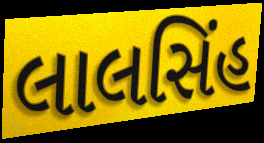
લાલસિંહ